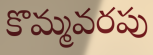
కొమ్మవరపు